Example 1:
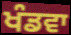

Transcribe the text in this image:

ਖੰਡਵਾ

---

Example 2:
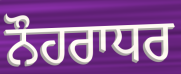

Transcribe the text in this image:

ਨੌਹਰਾਧਰ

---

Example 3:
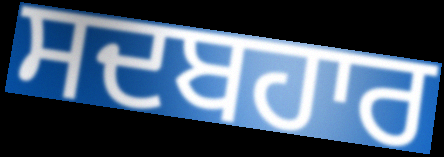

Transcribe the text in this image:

ਸਦਬਹਾਰ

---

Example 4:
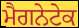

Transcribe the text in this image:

ਮੈਗਨੇਟੇਕ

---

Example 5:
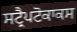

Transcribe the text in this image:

ਸਟ੍ਰੈਪਟੋਕਾਕਸ